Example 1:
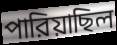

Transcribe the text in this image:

পারিয়াছিল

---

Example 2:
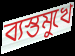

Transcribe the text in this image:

ব্যস্তমুখে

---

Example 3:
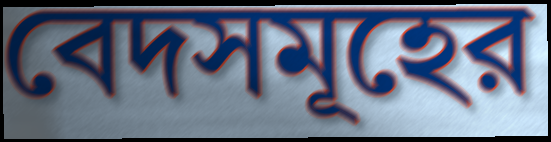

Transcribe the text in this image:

বেদসমূহের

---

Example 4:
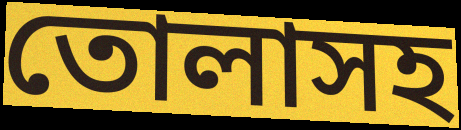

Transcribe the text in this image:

তোলাসহ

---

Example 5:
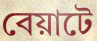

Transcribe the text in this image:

বেয়াটে